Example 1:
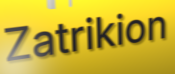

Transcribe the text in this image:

Zatrikion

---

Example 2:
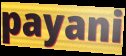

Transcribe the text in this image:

payani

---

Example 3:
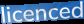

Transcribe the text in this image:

licenced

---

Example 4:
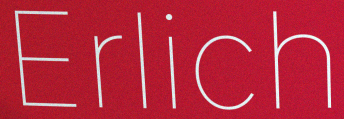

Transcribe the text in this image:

Erlich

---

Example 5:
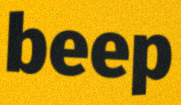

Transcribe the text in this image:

beep